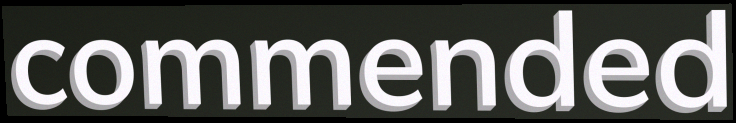
commended